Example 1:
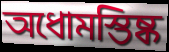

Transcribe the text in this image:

অধোমস্তিষ্ক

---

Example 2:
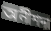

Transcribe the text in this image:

অনীশদা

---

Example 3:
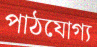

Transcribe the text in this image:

পাঠযোগ্য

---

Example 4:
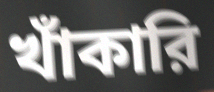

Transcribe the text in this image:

খাঁকারি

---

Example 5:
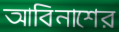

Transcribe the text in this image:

আবিনাশের